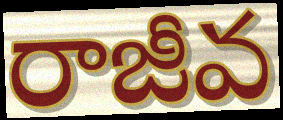
రాజీవ